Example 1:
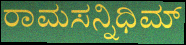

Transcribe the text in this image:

ರಾಮಸನ್ನಿಧಿಮ್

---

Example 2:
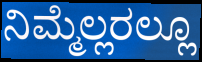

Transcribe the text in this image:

ನಿಮ್ಮೆಲ್ಲರಲ್ಲೂ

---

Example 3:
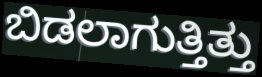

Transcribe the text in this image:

ಬಿಡಲಾಗುತ್ತಿತ್ತು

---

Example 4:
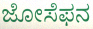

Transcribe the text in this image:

ಜೋಸೆಫನ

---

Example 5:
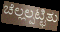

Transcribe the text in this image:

ಚೆಲ್ಲಲ್ಪಟ್ಟಿತು